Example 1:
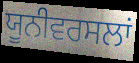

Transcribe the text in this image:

ਯੂਨੀਵਰਸਲਾਂ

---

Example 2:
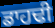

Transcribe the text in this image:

ਡਾਹਢੀ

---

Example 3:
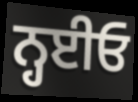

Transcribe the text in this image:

ਨ੍ਹਈਓ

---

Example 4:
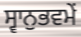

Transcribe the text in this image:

ਸ੍ਵਾਨੁਭਵਮੇਂ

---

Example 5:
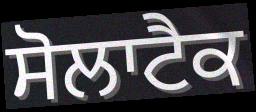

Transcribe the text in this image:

ਸੋਲਾਟੈਕ